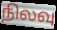
நிலவு